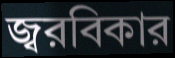
জ্বরবিকার